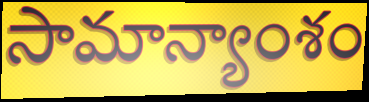
సామాన్యాంశం